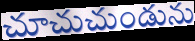
చూచుచుండును